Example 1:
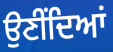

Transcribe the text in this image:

ਉਣੀਂਦਿਆਂ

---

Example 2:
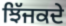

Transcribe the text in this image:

ਝਿੱਜਕਦੇ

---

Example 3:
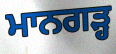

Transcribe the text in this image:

ਮਾਨਗੜ੍ਹ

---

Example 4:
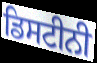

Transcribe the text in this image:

ਡਿਸਟੀਨੀ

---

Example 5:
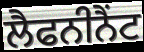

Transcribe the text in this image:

ਲੈਫਨੀਨੈਂਟ